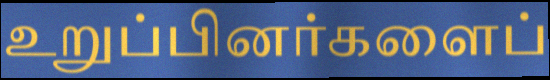
உறுப்பினர்களைப்